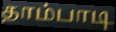
தாம்பாடி